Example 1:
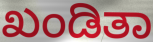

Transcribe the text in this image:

ಖಂಡಿತಾ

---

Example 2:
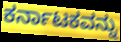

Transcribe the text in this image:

ಕರ್ನಾಟಕವನ್ನು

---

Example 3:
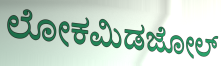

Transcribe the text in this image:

ಲೋಕಮಿಡಜೋಲ್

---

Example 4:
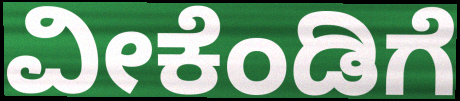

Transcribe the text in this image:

ವೀಕೆಂಡಿಗೆ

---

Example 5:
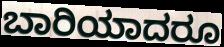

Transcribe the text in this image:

ಬಾರಿಯಾದರೂ